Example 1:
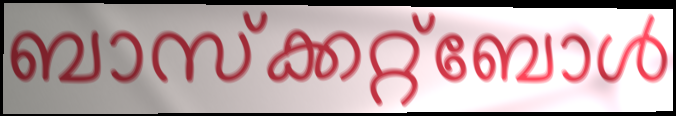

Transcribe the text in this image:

ബാസ്ക്കറ്റ്ബോൾ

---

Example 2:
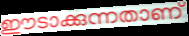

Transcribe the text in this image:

ഈടാക്കുന്നതാണ്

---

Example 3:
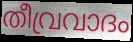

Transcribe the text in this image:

തീവ്രവാദം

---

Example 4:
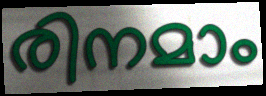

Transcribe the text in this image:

രിനമാം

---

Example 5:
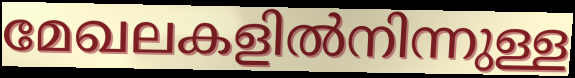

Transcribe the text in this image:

മേഖലകളിൽനിന്നുള്ള